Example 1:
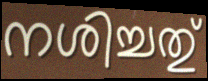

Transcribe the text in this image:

നശിച്ചതു്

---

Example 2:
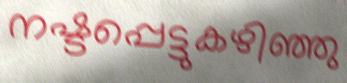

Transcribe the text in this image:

നഷ്ടപ്പെട്ടുകഴിഞ്ഞു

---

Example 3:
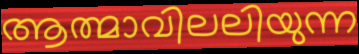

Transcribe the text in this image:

ആത്മാവിലലിയുന്ന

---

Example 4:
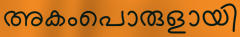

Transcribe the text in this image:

അകംപൊരുളായി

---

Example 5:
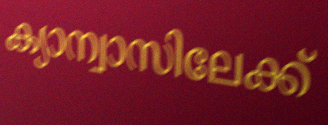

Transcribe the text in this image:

ക്യാന്വാസിലേക്ക്